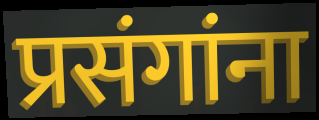
प्रसंगांना